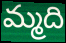
మ్మది